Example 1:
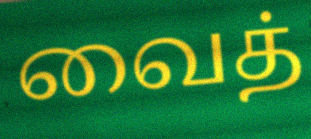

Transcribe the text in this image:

வைத்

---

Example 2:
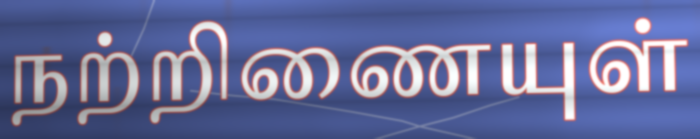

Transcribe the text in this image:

நற்றிணையுள்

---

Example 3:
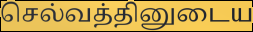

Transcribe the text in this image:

செல்வத்தினுடைய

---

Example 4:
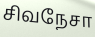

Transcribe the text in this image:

சிவநேசா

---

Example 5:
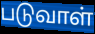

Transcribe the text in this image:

படுவாள்